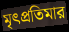
মৃৎপ্রতিমার